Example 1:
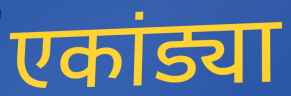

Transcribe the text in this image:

एकांड्या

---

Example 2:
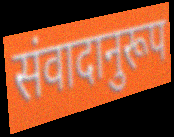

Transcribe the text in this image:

संवादानुरूप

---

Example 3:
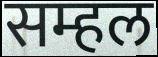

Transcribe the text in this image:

सम्हल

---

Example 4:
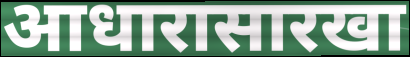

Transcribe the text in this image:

आधारासारखा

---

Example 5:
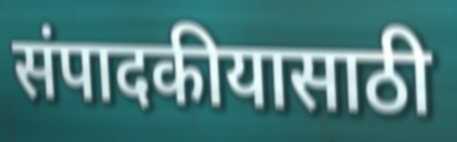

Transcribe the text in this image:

संपादकीयासाठी